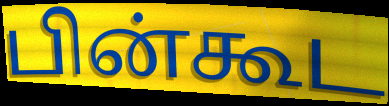
பின்கூட